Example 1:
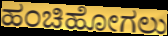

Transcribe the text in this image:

ಹಂಚಿಹೋಗಲು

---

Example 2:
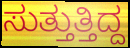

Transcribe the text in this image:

ಸುತ್ತುತ್ತಿದ್ದ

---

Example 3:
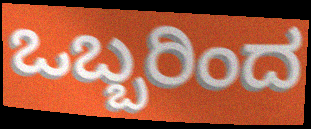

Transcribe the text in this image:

ಒಬ್ಬರಿಂದ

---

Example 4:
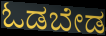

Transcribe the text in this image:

ಓಡಬೇಡ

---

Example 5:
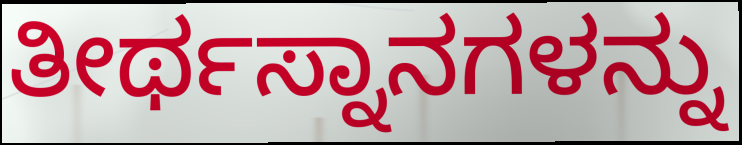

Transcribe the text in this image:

ತೀರ್ಥಸ್ನಾನಗಳನ್ನು